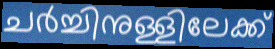
ചർച്ചിനുള്ളിലേക്ക്